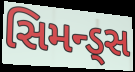
સિમન્ડ્સ